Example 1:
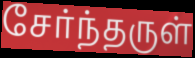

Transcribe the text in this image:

சேர்ந்தருள்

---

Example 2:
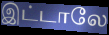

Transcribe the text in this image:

இட்டாலே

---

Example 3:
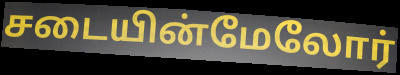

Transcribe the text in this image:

சடையின்மேலோர்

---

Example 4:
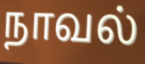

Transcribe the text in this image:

நாவல்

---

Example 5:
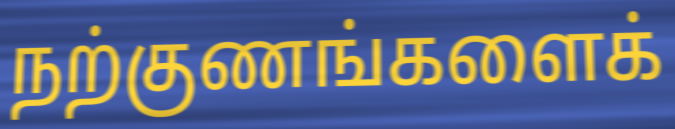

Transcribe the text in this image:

நற்குணங்களைக்